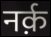
नर्क़